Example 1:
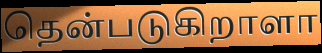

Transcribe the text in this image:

தென்படுகிறாளா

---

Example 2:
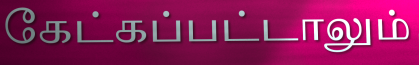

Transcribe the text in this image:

கேட்கப்பட்டாலும்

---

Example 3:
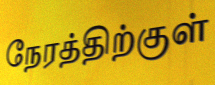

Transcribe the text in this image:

நேரத்திற்குள்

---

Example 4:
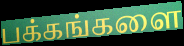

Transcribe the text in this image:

பக்கங்களை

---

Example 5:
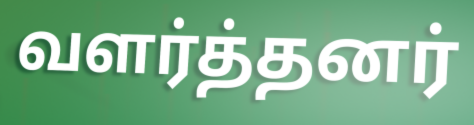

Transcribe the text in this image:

வளர்த்தனர்